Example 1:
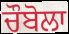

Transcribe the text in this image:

ਚੌਬੋਲਾ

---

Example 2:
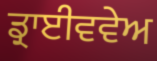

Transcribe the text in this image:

ਡ੍ਰਾਈਵਵੇਅ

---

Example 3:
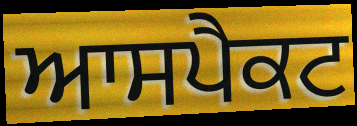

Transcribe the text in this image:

ਆਸਪੈਕਟ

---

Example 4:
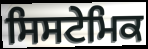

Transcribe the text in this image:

ਸਿਸਟੇਮਿਕ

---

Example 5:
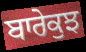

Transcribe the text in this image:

ਬਾਰੇਕੁਝ